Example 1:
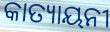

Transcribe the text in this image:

କାତ୍ୟାୟନୀ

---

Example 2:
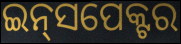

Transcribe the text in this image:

ଇନ୍‍ସପେକ୍ଟର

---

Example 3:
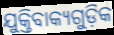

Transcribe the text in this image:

ଯୁକ୍ତିବାକ୍ୟଗୁଡ଼ିକ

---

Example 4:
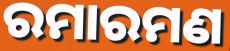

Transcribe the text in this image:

ରମାରମଣ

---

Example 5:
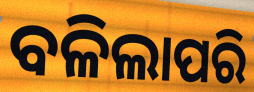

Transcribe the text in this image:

ବଳିଲାପରି